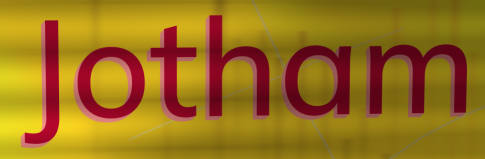
Jotham